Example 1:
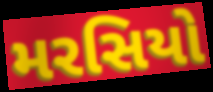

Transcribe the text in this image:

મરસિયો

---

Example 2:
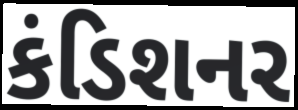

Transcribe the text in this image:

કંડિશનર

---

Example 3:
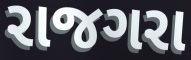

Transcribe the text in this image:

રાજગરા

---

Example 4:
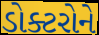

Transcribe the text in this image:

ડોક્ટરોને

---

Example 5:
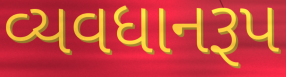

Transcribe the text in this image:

વ્યવધાનરૂપ